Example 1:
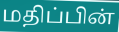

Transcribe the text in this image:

மதிப்பின்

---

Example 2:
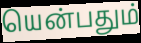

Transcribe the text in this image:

யென்பதும்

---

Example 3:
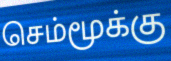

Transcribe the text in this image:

செம்மூக்கு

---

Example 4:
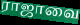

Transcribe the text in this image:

ராஜாவை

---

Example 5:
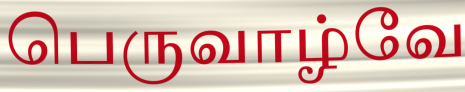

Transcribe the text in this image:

பெருவாழ்வே